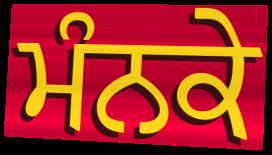
ਮੰਨਕੇ